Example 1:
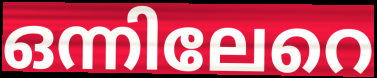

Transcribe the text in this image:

ഒന്നിലേറെ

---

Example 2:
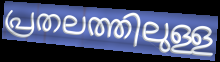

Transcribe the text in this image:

പ്രതലത്തിലുള്ള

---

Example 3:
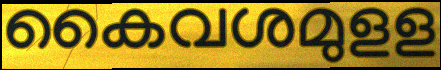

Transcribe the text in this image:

കൈവശമുളള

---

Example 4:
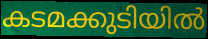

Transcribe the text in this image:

കടമക്കുടിയിൽ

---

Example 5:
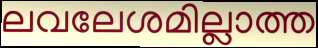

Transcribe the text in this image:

ലവലേശമില്ലാത്ത